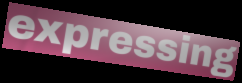
expressing